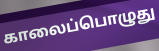
காலைப்பொழுது